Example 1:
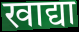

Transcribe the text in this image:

खाद्या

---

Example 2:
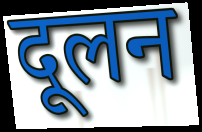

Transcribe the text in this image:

दूलन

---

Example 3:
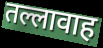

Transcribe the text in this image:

तल्लावाह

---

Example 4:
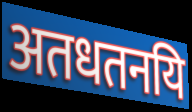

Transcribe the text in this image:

अतधतनयि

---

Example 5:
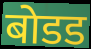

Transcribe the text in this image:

बोडड